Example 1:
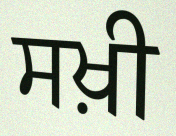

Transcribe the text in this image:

ਸਖ਼ੀ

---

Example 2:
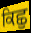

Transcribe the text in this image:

ਕਿਛੁ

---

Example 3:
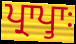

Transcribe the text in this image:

ਪ੍ਰਾਪ੍ਤਾਃ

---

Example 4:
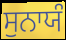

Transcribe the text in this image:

ਸੁਨਾਯੰ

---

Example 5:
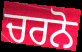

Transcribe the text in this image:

ਚਰਨੋ